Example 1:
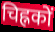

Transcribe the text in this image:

चिह्नकों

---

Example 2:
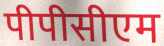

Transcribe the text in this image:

पीपीसीएम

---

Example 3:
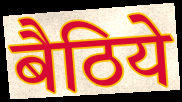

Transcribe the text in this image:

बैठिये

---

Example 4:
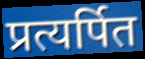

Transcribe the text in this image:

प्रत्यर्पित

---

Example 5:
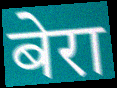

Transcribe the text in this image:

बेरा